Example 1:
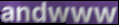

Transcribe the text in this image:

andwww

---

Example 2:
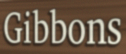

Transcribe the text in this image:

Gibbons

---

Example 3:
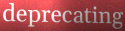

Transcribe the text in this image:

deprecating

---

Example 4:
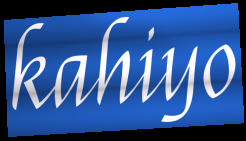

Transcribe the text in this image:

kahiyo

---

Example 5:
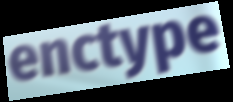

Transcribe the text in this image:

enctype